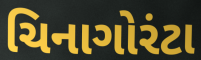
ચિનાગોરંટા